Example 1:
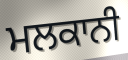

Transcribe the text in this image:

ਮਲਕਾਨੀ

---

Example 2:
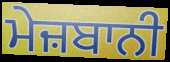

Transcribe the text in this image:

ਮੇਜ਼ਬਾਨੀ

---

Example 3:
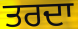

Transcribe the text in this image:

ਤਰਦਾ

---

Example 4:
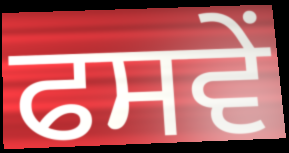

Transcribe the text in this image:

ਫਸਵੇਂ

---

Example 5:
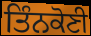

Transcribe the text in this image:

ਤਿੰਨਕੋਣੀ